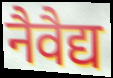
नैवैद्य